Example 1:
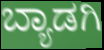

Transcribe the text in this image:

ಬ್ಯಾಡಗಿ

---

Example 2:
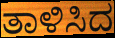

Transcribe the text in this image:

ತಾಳಿಸಿದ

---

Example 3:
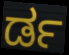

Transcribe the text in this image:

ರ್ಡ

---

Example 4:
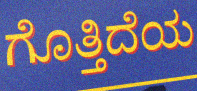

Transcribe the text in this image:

ಗೊತ್ತಿದೆಯ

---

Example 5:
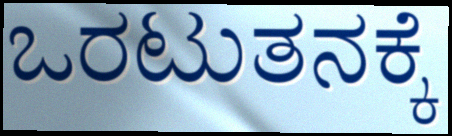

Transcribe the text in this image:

ಒರಟುತನಕ್ಕೆ